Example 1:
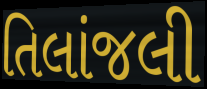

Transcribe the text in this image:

તિલાંજલી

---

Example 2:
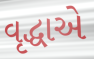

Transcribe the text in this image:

વૃદ્ધાએ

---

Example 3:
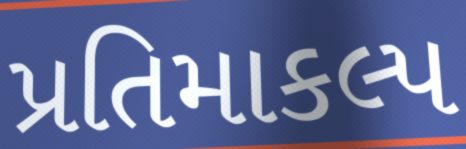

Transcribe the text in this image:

પ્રતિમાકલ્પ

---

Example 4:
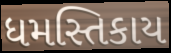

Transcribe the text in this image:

ધમસ્તિકાય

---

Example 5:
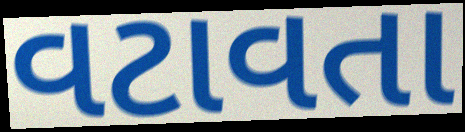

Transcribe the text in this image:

વટાવતા